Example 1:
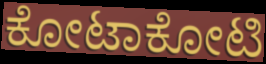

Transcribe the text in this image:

ಕೋಟಾಕೋಟಿ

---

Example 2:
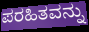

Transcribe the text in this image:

ಪರಹಿತವನ್ನು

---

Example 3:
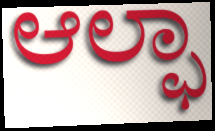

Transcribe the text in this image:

ಆಲ್ಫಾ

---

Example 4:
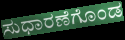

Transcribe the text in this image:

ಸುಧಾರಣೆಗೊಂಡ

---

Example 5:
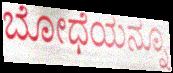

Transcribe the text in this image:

ಬೋಧೆಯನ್ನೂ